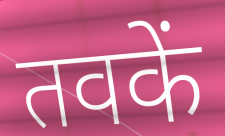
तवकें